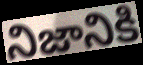
నిజానికి